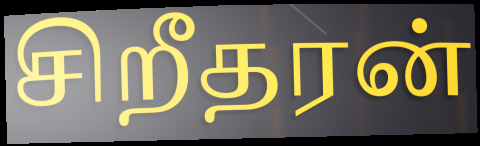
சிறீதரன்